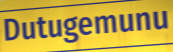
Dutugemunu